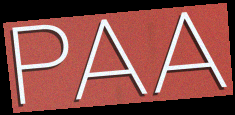
PAA